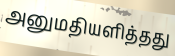
அனுமதியளித்தது